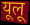
यूलू